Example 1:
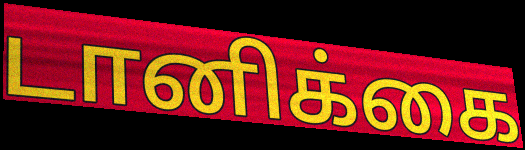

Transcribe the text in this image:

டானிக்கை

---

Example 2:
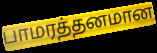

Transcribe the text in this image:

பாமரத்தனமான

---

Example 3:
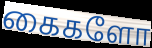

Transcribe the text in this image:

கைகளோ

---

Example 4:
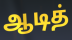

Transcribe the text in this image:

ஆடித்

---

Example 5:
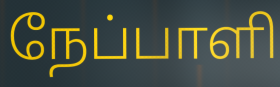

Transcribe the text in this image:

நேப்பாளி